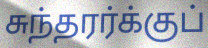
சுந்தரர்க்குப்